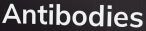
Antibodies